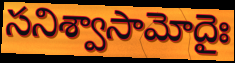
సనిశ్వాసామోదైః